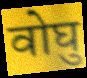
वोघु